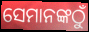
ସେମାନଙ୍କଠୁଁ